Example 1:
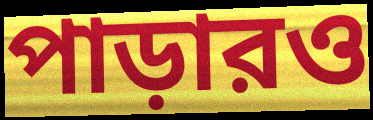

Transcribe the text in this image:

পাড়ারও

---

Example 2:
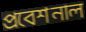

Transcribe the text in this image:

প্রবেশনাল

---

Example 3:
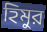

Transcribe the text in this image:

হিমুর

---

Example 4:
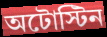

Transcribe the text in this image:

অটোস্টিন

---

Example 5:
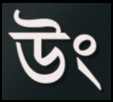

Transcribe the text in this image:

উং